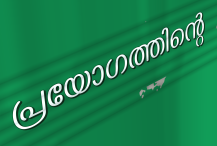
പ്രയോഗത്തിന്റെ